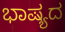
ಭಾಷ್ಯದ